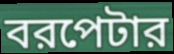
বরপেটার